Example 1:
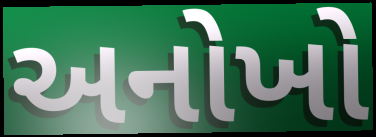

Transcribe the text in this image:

અનોખો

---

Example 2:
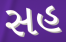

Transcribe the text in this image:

સહ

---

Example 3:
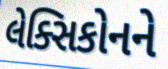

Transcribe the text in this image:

લેક્સિકોનને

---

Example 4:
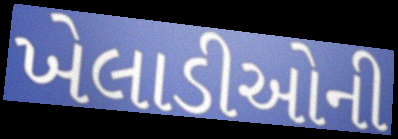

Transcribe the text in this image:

ખેલાડીઓની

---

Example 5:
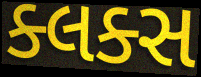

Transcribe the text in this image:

ક્લક્સ